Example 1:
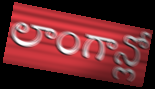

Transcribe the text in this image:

లాంగాన్లో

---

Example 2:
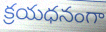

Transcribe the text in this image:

క్రయధనంగా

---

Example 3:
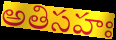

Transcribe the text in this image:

అతిసహః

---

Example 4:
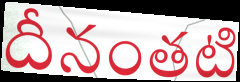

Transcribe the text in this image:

దీనంతటి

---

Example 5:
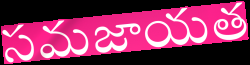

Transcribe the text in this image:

సమజాయత